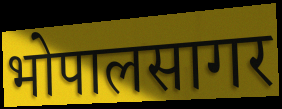
भोपालसागर